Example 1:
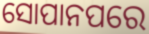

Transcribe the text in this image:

ସୋପାନପରେ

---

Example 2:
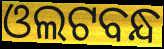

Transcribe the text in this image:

ଓଲଟବନ୍ଧ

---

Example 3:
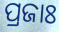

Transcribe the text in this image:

ପ୍ରଜାଃ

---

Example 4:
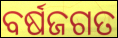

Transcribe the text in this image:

ବର୍ଷଜଗତ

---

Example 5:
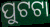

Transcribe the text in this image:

ପୁଟଟା